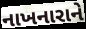
નાખનારાને